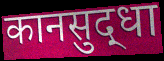
कानसुद्धा